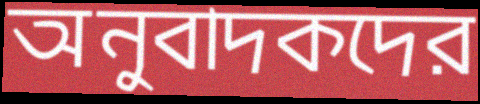
অনুবাদকদের